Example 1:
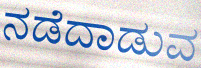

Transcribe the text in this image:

ನಡೆದಾಡುವ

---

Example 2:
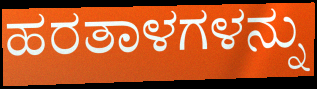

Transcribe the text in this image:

ಹರತಾಳಗಳನ್ನು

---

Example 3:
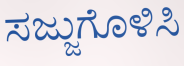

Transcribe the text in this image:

ಸಜ್ಜುಗೊಳಿಸಿ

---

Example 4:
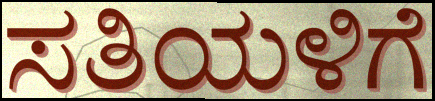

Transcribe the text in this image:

ಸತಿಯಳಿಗೆ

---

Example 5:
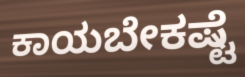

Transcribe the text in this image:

ಕಾಯಬೇಕಷ್ಟೆ